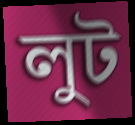
লুট